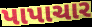
પાપાચાર